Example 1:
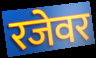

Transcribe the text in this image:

रजेवर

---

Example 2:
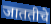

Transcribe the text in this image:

जाततीचे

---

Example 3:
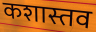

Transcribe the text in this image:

कशास्तव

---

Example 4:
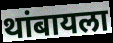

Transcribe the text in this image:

थांबायला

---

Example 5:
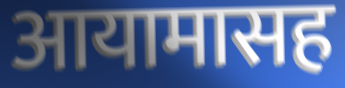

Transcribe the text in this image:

आयामासह